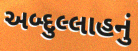
અબ્દુલ્લાહનું